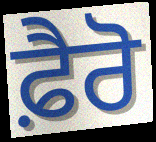
ਫ਼ੈਰੋ